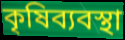
কৃষিব্যবস্থা